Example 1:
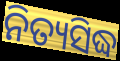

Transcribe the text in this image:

ନିତ୍ୟସିଦ୍ଧ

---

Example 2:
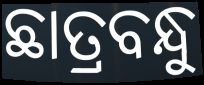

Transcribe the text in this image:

ଛାତ୍ରବନ୍ଧୁ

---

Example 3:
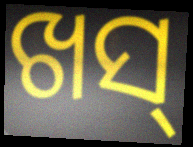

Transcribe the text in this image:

ଖସ୍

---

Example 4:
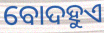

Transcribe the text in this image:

ବୋଦହୁଏ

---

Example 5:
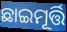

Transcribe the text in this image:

ଛାଇମୂର୍ତ୍ତି